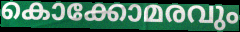
കൊക്കോമരവും